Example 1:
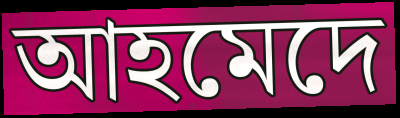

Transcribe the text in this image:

আহমেদে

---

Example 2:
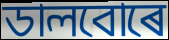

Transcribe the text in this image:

ডালবোৰে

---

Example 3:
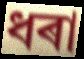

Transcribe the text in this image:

ধৰা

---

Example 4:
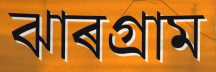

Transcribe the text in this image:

ঝাৰগ্ৰাম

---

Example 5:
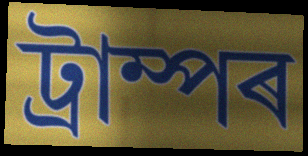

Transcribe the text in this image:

ট্ৰাম্পৰ